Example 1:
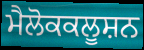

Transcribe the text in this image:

ਮੈਲੋਕਕਲੂਸ਼ਨ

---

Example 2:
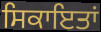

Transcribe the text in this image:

ਸਿਕਾਇਤਾਂ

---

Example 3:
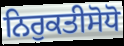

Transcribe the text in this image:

ਨਿਰੁਕਤੀਸੋਧੋ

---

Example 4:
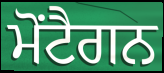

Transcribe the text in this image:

ਮੋਂਟੈਗਨ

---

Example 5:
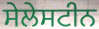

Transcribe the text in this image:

ਸੇਲੇਸਟੀਨ